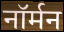
नॉर्मन